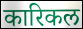
कारिकल